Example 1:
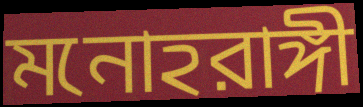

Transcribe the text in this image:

মনোহরাঙ্গী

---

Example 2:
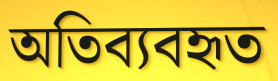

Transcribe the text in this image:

অতিব্যবহৃত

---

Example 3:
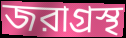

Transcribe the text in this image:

জরাগ্রস্থ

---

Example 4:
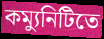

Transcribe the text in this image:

কম্যুনিটিতে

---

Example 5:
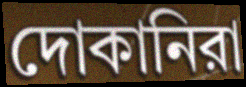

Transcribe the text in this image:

দোকানিরা